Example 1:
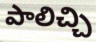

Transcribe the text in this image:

పాలిచ్చి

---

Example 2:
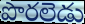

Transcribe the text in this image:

పొరలెడు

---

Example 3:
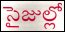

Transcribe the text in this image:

సైజుల్లో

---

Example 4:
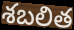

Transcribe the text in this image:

శబలిత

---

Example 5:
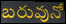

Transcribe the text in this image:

బరువునో